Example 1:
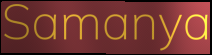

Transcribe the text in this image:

Samanya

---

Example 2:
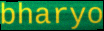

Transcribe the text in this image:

bharyo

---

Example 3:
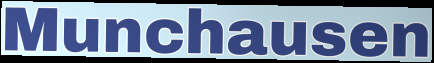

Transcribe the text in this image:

Munchausen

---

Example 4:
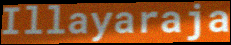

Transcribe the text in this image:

Illayaraja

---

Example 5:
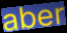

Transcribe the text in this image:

aber